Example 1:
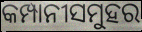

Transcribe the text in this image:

କମ୍ପାନୀସମୁହର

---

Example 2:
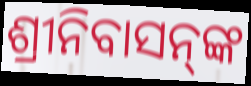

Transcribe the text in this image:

ଶ୍ରୀନିବାସନ୍‌ଙ୍କ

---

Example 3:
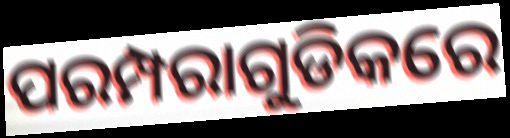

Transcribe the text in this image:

ପରମ୍ପରାଗୁଡିକରେ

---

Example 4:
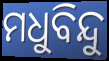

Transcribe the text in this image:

ମଧୁବିନ୍ଦୁ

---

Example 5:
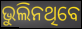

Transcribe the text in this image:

ଭୁଲିନଥିବେ